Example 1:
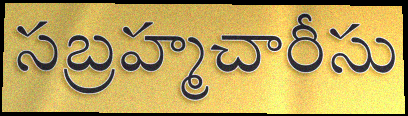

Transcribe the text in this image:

సబ్రహ్మచారీసు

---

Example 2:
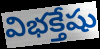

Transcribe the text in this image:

విభక్తేషు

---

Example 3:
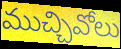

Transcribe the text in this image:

ముచ్చివోలు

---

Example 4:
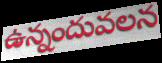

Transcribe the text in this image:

ఉన్నందువలన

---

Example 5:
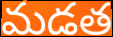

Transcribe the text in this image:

మడత